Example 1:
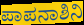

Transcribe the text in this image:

ಪಾಪನಾಶಿನಿ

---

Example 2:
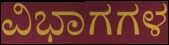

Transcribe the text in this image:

ವಿಭಾಗಗಳ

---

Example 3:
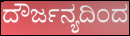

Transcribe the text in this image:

ದೌರ್ಜನ್ಯದಿಂದ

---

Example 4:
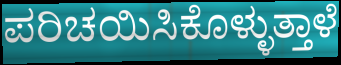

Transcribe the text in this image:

ಪರಿಚಯಿಸಿಕೊಳ್ಳುತ್ತಾಳೆ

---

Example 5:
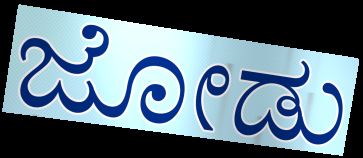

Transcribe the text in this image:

ಜೋಡು